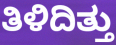
ತಿಳಿದಿತ್ತು